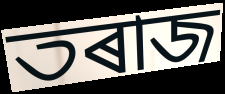
তৰাজ